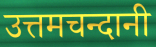
उत्तमचन्दानी